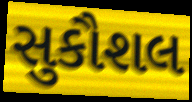
સુકૌશલ